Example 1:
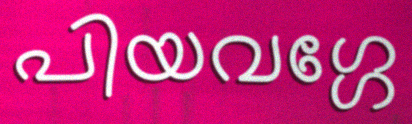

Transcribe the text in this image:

പിയവഗ്ഗേ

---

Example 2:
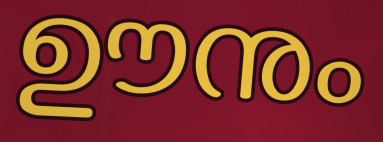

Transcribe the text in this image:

ഊനും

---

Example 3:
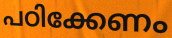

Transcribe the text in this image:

പഠിക്കേണം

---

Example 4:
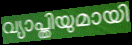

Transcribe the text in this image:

വ്യാപ്തിയുമായി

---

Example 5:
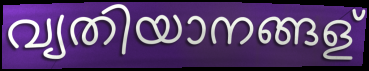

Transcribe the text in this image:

വ്യതിയാനങ്ങള്